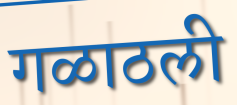
गळाठली